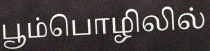
பூம்பொழிலில்